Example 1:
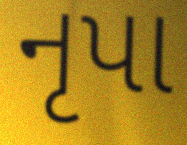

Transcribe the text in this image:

નૃપા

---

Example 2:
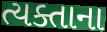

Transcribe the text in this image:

ત્યક્તાના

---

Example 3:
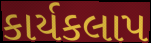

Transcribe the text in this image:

કાર્યકલાપ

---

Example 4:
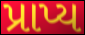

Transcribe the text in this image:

પ્રાપ્ય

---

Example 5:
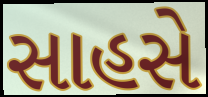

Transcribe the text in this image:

સાહસે